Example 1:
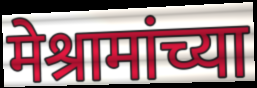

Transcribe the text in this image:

मेश्रामांच्या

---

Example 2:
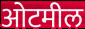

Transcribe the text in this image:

ओटमील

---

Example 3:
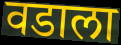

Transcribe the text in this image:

वडाला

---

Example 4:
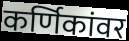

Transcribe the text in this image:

कर्णिकांवर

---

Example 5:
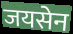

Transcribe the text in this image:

जयसेन